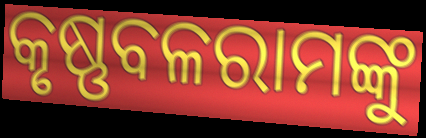
କୃଷ୍ଣବଳରାମଙ୍କୁ